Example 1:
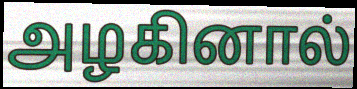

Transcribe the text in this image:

அழகினால்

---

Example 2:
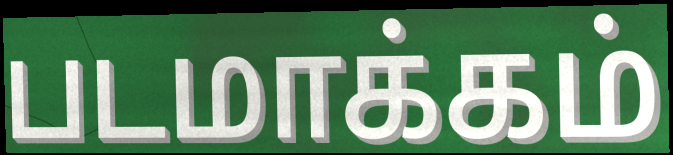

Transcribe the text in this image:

படமாக்கம்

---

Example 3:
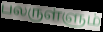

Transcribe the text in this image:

பலருள்ளும்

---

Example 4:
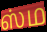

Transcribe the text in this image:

ஸ்ம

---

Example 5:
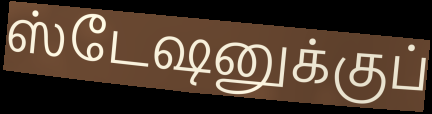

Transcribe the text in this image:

ஸ்டேஷனுக்குப்